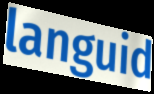
languid